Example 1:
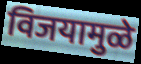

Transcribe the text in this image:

विजयामुळे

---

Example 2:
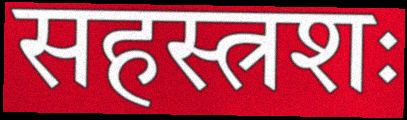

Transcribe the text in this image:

सहस्त्रशः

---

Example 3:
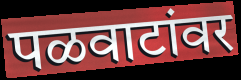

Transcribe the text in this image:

पळवाटांवर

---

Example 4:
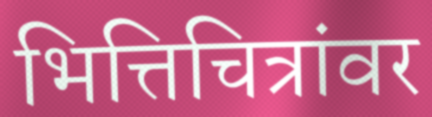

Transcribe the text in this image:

भित्तिचित्रांवर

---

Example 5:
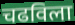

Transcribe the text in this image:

चढविला